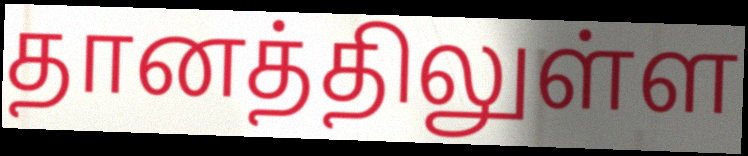
தானத்திலுள்ள